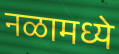
नळामध्ये